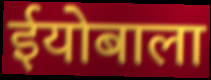
ईयोबाला